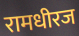
रामधीरज